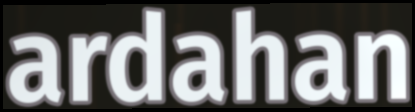
ardahan